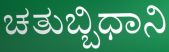
ಚತುಬ್ಬಿಧಾನಿ